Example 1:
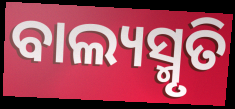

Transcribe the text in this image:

ବାଲ୍ୟସ୍ମୃତି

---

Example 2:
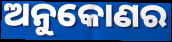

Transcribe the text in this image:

ଅନୁକୋଣର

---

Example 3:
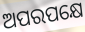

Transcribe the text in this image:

ଅପରପକ୍ଷେ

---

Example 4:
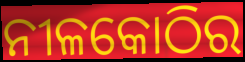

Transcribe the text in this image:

ନୀଳକୋଠିର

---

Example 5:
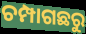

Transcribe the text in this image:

ଚମ୍ପାଗଛରୁ